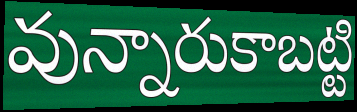
వున్నారుకాబట్టి